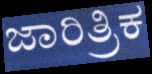
ಜಾರಿತ್ರಿಕ